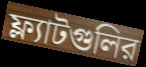
ফ্ল্যাটগুলির